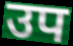
उप